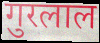
गुरलाल